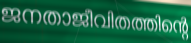
ജനതാജീവിതത്തിന്റെ